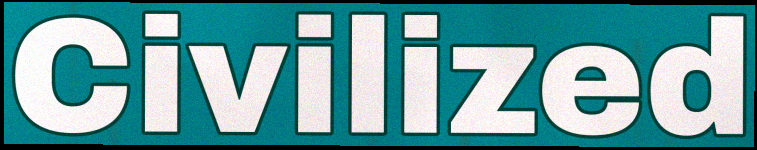
Civilized